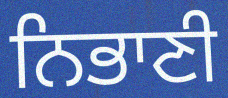
ਨਿਭਾਣੀ